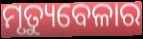
ମୃତ୍ୟୁବେଳାର